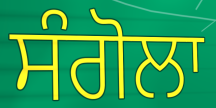
ਸੰਗੋਲਾ